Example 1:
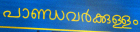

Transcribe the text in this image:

പാണ്ഡവർക്കുള്ളം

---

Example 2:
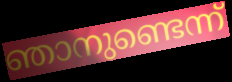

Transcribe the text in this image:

ഞാനുണ്ടെന്ന്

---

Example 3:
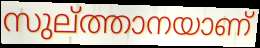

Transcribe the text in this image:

സുല്ത്താനയാണ്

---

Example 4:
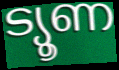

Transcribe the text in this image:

ട്യൂണ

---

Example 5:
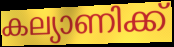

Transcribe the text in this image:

കല്യാണിക്ക്